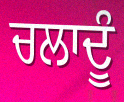
ਚਲਾਦੂੰ